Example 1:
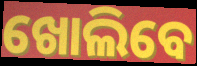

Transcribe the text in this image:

ଖୋଲିବେ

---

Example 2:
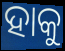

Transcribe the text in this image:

ହାକୁ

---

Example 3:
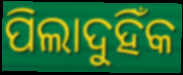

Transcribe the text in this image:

ପିଲାଦୁହିଁକ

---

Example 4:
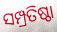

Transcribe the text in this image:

ସମ୍ପ୍ରତିଷ୍ଠା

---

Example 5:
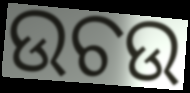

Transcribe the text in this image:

ଉଚଉ